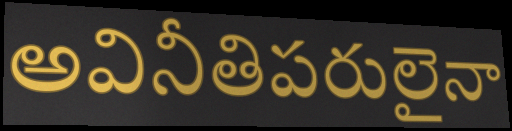
అవినీతిపరులైనా